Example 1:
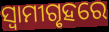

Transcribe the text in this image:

ସ୍ଵାମୀଗୃହରେ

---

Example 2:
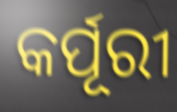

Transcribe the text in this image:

କର୍ପୂରୀ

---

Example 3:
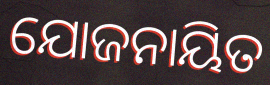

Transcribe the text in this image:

ଯୋଜନାୟିତ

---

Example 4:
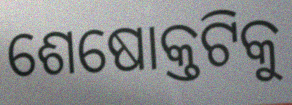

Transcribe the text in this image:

ଶେଷୋକ୍ତଟିକୁ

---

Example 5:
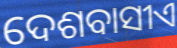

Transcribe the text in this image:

ଦେଶବାସୀଏ